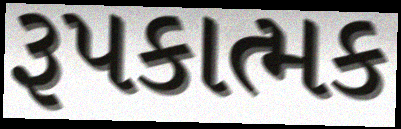
રૂપકાત્મક